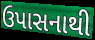
ઉપાસનાથી